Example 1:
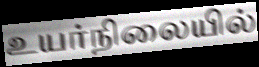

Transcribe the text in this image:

உயர்நிலையில்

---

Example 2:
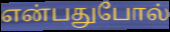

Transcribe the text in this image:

என்பதுபோல்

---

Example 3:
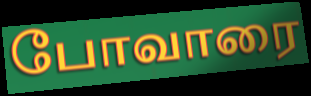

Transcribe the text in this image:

போவாரை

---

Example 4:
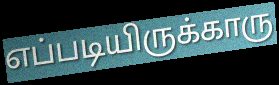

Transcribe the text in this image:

எப்படியிருக்காரு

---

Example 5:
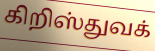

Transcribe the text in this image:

கிறிஸ்துவக்